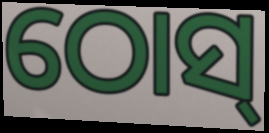
ଠୋସ୍